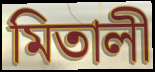
মিতালী